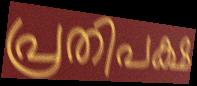
പ്രതിപക്ഷ